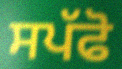
ਸਪੱਫੋ